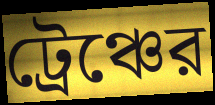
ট্রেঞ্চের